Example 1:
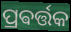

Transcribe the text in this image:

ପ୍ରଵର୍ତ୍ତକ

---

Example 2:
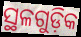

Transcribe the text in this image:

ସ୍ଥଳଗୁଡ଼ିକ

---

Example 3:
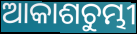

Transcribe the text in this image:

ଆକାଶଚୁମ୍ଭୀ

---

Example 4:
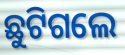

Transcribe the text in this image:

ଛୁଟିଗଲେ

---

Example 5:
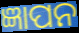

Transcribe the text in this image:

ଜ୍ଞାପନ